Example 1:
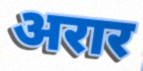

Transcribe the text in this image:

अरार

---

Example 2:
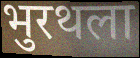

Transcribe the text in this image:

भुरथला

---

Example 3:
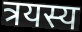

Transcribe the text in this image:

त्रयस्य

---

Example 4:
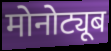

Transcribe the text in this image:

मोनोट्यूब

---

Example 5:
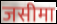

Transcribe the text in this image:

जसीमा